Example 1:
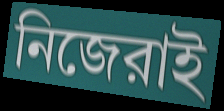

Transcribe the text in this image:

নিজেরাই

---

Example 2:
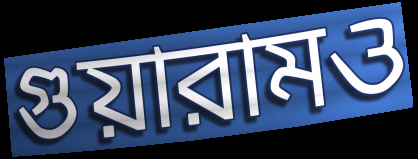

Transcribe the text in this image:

গুয়ারামও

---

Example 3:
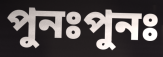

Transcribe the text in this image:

পুনঃপুনঃ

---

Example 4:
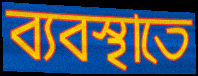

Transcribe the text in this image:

ব্যবস্থাতে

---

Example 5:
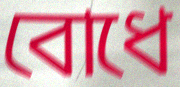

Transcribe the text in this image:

বোধে